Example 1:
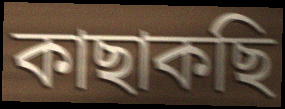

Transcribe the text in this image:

কাছাকছি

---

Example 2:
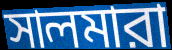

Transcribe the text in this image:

সালমারা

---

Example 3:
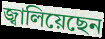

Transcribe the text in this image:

জ্বালিয়েছেন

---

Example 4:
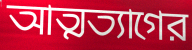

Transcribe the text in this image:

আত্মত্যাগের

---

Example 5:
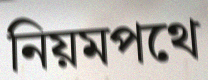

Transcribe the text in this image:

নিয়মপথে